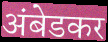
अंबेडकर